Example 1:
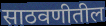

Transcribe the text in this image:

साठवणीतील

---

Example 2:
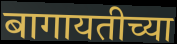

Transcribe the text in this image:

बागायतीच्या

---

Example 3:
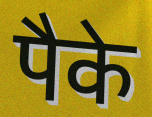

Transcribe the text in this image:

पैके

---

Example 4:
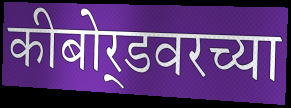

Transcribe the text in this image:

कीबोर्डवरच्या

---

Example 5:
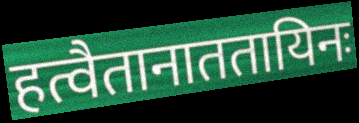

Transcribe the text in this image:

हत्वैतानाततायिनः